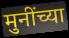
मुनींच्या